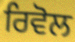
ਰਿਵੋਲ